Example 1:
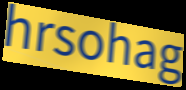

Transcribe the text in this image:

hrsohag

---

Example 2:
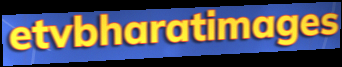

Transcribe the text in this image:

etvbharatimages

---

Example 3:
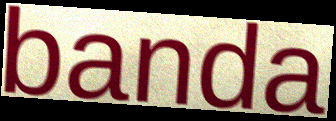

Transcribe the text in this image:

banda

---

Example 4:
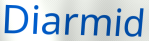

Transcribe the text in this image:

Diarmid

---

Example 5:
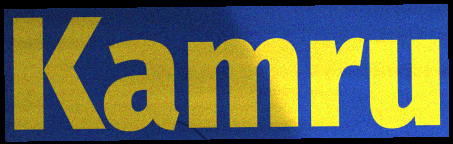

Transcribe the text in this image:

Kamru